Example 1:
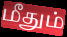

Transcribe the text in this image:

மீதும்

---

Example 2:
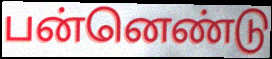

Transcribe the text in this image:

பன்னெண்டு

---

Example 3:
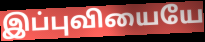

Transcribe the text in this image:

இப்புவியையே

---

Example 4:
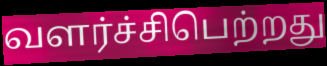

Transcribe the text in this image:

வளர்ச்சிபெற்றது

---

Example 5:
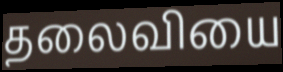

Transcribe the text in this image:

தலைவியை